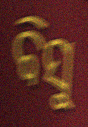
ବିସୁ